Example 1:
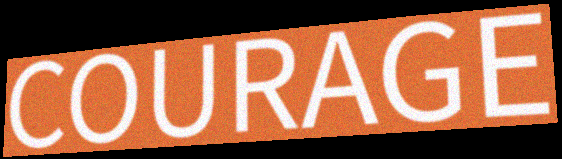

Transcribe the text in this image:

COURAGE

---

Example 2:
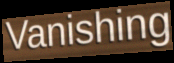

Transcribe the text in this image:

Vanishing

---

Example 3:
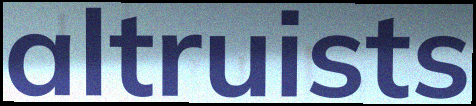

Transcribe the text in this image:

altruists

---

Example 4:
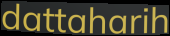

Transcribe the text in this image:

dattaharih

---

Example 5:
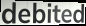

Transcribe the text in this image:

debited